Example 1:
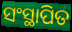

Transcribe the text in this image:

ସଂସ୍ଥାପିତ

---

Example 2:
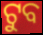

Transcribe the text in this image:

ଟୁବ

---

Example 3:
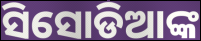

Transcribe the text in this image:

ସିସୋଡିଆଙ୍କ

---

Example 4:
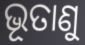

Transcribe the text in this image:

ଭୂତାଣୁ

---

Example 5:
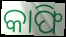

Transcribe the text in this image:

କାଫି